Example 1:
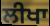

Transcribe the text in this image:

ਲੀਖਾ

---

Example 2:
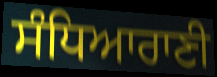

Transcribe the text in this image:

ਸੰਧਿਆਰਾਣੀ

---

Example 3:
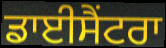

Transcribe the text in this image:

ਡਾਈਸੈਂਟਰਾ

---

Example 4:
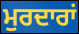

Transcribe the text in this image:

ਮੁਰਦਾਰਾਂ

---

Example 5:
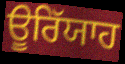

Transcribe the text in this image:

ਊਰਿੱਯਾਹ